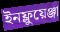
ইনফ্লুয়েঞ্জা